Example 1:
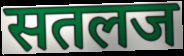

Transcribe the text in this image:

सतलज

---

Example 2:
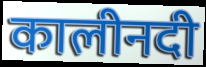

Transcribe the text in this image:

कालीनदी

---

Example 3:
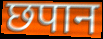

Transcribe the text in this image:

छपान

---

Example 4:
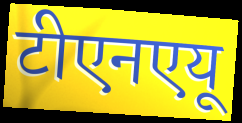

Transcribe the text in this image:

टीएनएयू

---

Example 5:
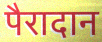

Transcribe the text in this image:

पैरादान